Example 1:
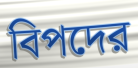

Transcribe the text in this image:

বিপদের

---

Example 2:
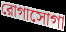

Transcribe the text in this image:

রোগাসোগা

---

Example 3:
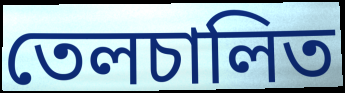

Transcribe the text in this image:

তেলচালিত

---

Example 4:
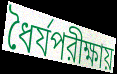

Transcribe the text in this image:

ধৈর্যপরীক্ষায়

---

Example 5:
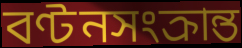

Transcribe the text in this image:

বণ্টনসংক্রান্ত